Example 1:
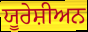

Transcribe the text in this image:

ਯੂਰੇਸ਼ੀਅਨ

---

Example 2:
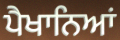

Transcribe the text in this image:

ਪੈਖਾਨਿਆਂ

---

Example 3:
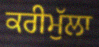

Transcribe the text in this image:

ਕਰੀਮੁੱਲਾ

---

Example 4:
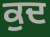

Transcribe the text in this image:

ਕੁਦ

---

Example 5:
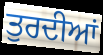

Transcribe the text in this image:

ਤੁਰਦੀਆਂ